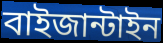
বাইজান্টাইন